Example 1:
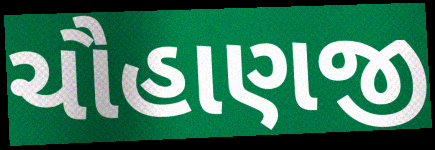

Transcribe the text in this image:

ચૌહાણજી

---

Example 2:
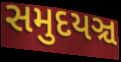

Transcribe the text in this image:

સમુદયઞ્ચ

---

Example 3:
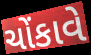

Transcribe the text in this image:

ચોંકાવે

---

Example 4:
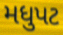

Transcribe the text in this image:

મધુપટ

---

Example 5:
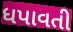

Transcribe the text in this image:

ધપાવતી